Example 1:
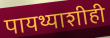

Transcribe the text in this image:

पायथ्याशीही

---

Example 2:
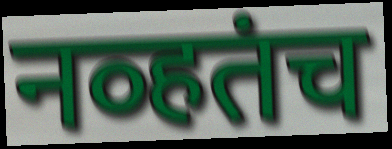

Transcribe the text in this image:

नव्हतंच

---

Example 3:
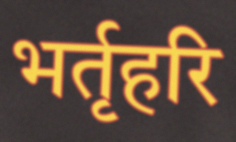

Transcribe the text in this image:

भर्तृहरि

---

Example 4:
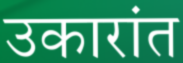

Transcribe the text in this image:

उकारांत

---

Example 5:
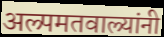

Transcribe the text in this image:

अल्पमतवाल्यांनी